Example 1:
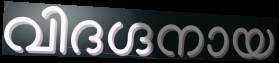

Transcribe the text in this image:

വിദഗ്ദനായ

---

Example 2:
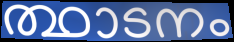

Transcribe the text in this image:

ത്ഥാടനം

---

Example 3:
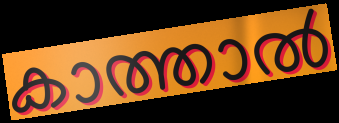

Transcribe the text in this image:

കാത്താൽ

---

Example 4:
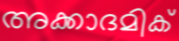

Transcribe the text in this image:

അക്കാദമിക്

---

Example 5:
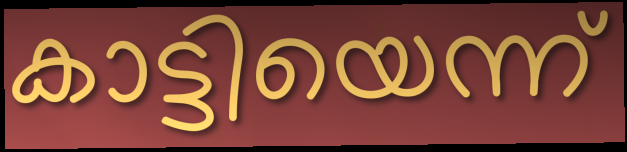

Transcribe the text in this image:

കാട്ടിയെന്ന്